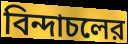
বিন্দাচলের